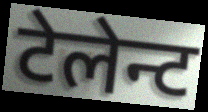
टेलेन्ट